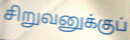
சிறுவனுக்குப்